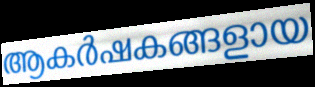
ആകർഷകങ്ങളായ